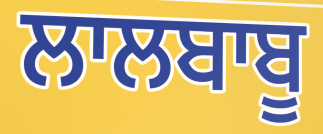
ਲਾਲਬਾਬੂ